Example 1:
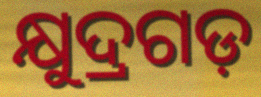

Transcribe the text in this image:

କ୍ଷୁଦ୍ରଗଡ଼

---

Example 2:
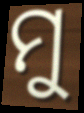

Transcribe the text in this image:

ମୁ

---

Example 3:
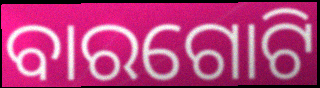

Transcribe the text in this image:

ବାରଗୋଟି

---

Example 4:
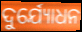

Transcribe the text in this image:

ଦୁର୍ଯ୍ୟୋଧନ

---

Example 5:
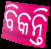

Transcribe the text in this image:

ବିକନ୍ତି